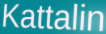
Kattalin